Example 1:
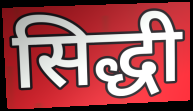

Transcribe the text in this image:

सिद्धी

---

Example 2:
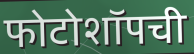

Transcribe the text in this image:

फोटोशॉपची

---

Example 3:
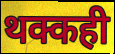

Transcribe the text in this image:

थक्कही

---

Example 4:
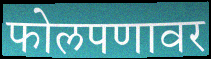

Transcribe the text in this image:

फोलपणावर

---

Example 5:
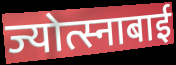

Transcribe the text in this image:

ज्योत्स्नाबाई